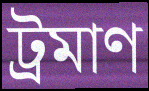
ট্রমাণ